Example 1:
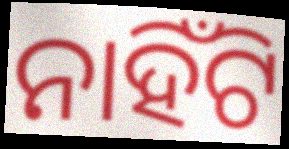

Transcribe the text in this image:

ନାହିଁଟି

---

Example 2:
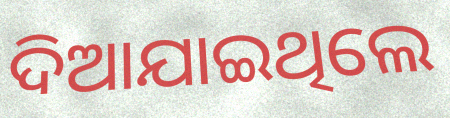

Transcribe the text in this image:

ଦିଆଯାଇଥିଲେ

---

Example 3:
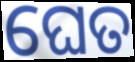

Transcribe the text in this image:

ଘେତ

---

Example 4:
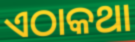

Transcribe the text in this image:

ଏଠାକଥା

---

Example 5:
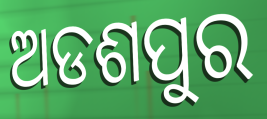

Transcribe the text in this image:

ଅଡଶପୁର